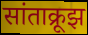
सांताक्रूझ